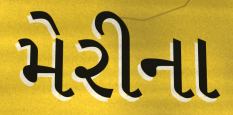
મેરીના